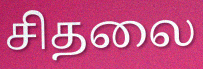
சிதலை